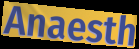
Anaesth